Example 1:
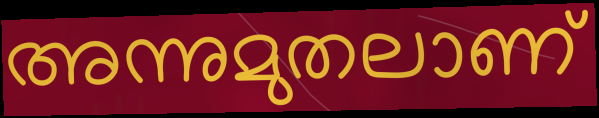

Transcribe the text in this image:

അന്നുമുതലാണ്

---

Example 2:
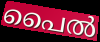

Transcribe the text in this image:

പൈൽ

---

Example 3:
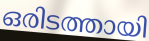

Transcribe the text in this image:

ഒരിടത്തായി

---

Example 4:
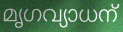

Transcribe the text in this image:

മൃഗവ്യാധന്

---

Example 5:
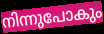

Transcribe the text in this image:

നിന്നുപോകും